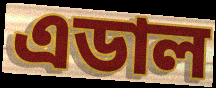
এডাল